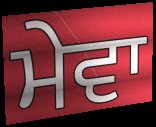
ਮੇਵਾ